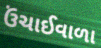
ઉંચાઈવાળા